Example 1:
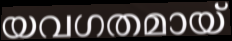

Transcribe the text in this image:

യവഗതമായ്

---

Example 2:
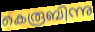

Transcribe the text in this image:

കെരൂബിന്നു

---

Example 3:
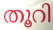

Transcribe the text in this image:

തൂറി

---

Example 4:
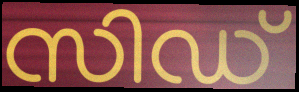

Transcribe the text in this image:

സിഡ്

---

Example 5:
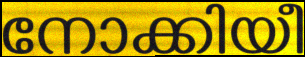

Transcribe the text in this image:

നോക്കിയീ